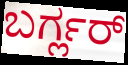
ಬರ್ಗ್ಲರ್